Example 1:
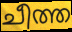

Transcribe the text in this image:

ചീത്ത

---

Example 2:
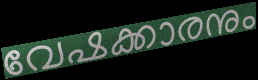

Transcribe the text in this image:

വേഷക്കാരനും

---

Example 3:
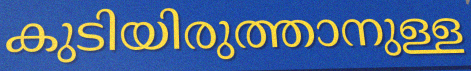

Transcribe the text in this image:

കുടിയിരുത്താനുള്ള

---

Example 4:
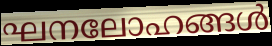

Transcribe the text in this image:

ഘനലോഹങ്ങൾ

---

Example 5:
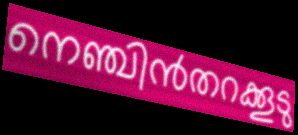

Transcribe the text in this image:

നെഞ്ചിൻതറക്കൂടു